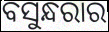
ବସୁନ୍ଧରାର